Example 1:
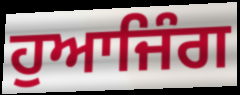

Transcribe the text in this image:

ਹੁਆਜਿੰਗ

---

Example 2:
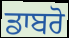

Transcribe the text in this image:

ਡਾਬਰੋ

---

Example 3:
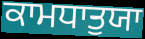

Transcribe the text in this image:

ਕਾਮਧਾਤੁਯਾ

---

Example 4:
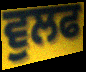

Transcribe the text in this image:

ਵੁਲਫ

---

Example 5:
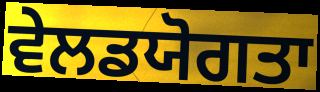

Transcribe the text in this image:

ਵੇਲਡਯੋਗਤਾ